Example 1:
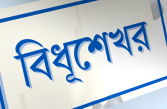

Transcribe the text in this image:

বিধূশেখর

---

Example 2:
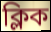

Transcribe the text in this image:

ক্লিক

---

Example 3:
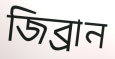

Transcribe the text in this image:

জিব্রান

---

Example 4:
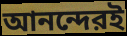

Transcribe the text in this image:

আনন্দেরই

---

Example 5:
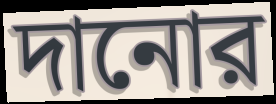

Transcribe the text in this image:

দানোর